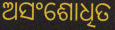
ଅସଂଶୋଧିତ